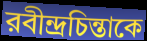
রবীন্দ্রচিন্তাকে